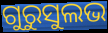
ଗୁରୁସୁଲଭ